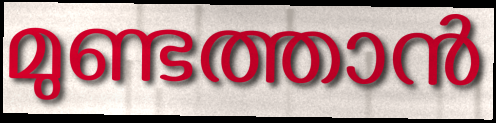
മുണ്ടത്താൻ